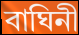
বাঘিনী